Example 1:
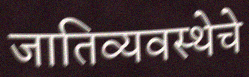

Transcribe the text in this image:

जातिव्यवस्थेचे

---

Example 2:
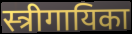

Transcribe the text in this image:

स्त्रीगायिका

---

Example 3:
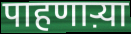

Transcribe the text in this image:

पाहणाऱ्‍या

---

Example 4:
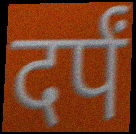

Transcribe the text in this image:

दर्पं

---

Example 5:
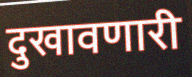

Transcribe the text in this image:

दुखावणारी